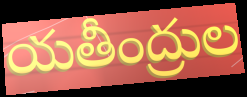
యతీంద్రుల